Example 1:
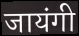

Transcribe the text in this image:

जायंगी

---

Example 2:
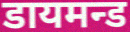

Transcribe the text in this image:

डायमन्ड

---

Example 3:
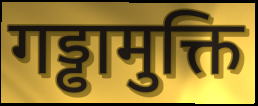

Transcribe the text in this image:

गड्ढामुक्ति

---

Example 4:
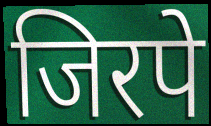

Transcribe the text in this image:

जिरपे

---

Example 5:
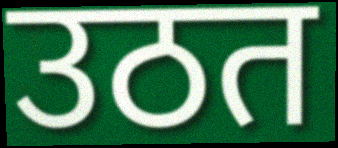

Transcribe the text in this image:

उठत